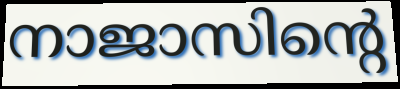
നാജാസിന്റെ